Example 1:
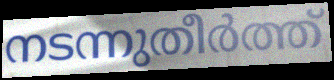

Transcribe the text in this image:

നടന്നുതീർത്ത്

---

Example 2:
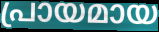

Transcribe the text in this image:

പ്രായമായ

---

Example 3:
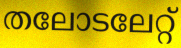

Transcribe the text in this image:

തലോടലേറ്റ്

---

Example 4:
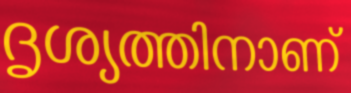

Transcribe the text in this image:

ദൃശ്യത്തിനാണ്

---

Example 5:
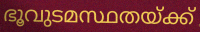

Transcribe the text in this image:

ഭൂവുടമസ്ഥതയ്ക്ക്